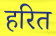
हरित